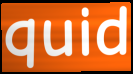
quid